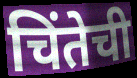
चिंतेची